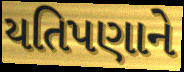
યતિપણાને